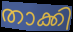
താക്കി